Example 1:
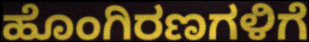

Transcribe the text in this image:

ಹೊಂಗಿರಣಗಳಿಗೆ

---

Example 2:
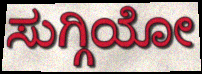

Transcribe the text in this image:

ಸುಗ್ಗಿಯೋ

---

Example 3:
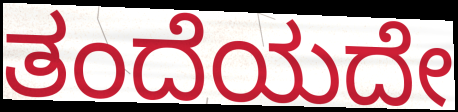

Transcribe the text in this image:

ತಂದೆಯದೇ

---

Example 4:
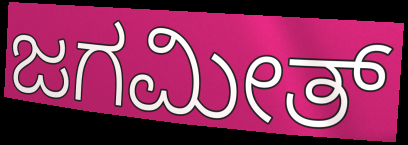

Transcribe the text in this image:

ಜಗಮೀತ್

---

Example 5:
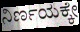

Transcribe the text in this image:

ನಿರ್ಣಯಕ್ಕೇ